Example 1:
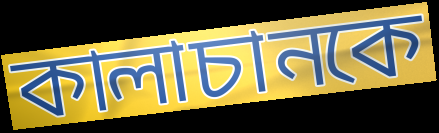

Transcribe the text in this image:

কালাচানকে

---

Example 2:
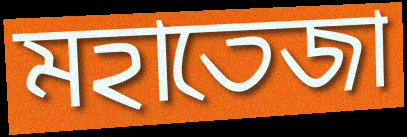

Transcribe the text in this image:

মহাতেজা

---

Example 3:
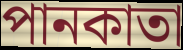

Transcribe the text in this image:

পানকাতা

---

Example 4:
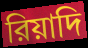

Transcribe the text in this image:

রিয়াদি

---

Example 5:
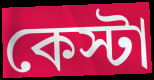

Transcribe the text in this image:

কেস্টা